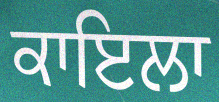
ਕਾਇਲਾ